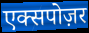
एक्सपोज़र